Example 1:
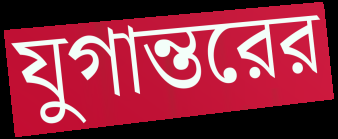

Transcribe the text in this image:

যুগান্তরের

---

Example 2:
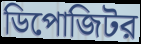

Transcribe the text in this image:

ডিপোজিটর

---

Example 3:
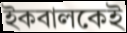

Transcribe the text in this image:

ইকবালকেই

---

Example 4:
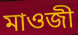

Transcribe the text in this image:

মাওজী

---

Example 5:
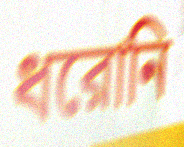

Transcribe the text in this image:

ধরোনি